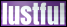
lustful